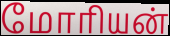
மோரியன்